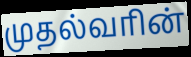
முதல்வரின்